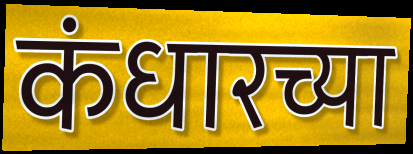
कंधारच्या